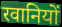
रवानियों